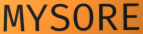
MYSORE